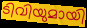
ടിവിയുമായി